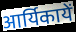
आर्यिकायें